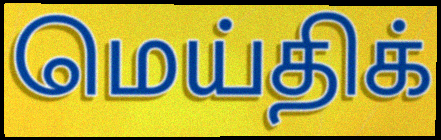
மெய்திக்